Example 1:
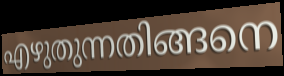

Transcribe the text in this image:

എഴുതുന്നതിങ്ങനെ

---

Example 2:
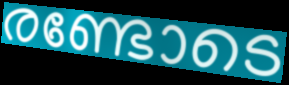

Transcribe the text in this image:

രണ്ടോടെ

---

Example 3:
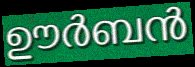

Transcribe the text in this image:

ഊർബൻ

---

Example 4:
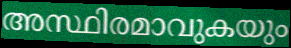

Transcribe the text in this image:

അസ്ഥിരമാവുകയും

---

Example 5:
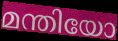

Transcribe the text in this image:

മന്തിയോ